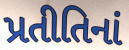
પ્રતીતિનાં